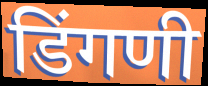
डिंगणी